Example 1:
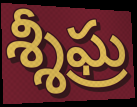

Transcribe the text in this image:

శ్శీఘ్ర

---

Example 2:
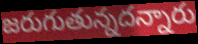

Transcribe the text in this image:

జరుగుతున్నదన్నారు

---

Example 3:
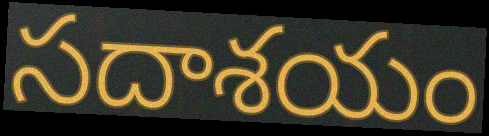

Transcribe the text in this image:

సదాశయం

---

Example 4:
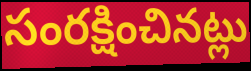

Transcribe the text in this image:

సంరక్షించినట్లు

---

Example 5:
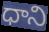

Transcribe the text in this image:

ధాని